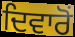
ਦਿਵਾਰੋਂ